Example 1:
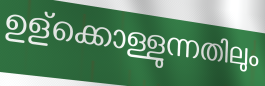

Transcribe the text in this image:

ഉള്ക്കൊള്ളുന്നതിലും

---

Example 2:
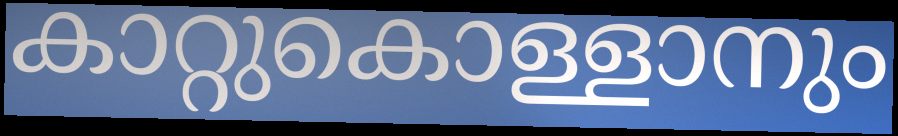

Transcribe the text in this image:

കാറ്റുകൊള്ളാനും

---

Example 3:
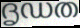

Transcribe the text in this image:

ദൃഡത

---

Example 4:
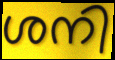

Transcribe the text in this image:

ശനി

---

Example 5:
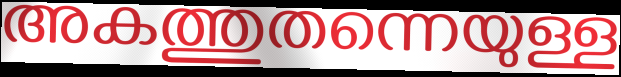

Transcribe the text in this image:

അകത്തുതന്നെയുള്ള